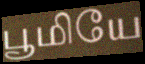
பூமியே